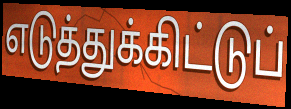
எடுத்துக்கிட்டுப்